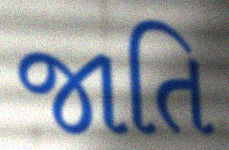
જાતિ